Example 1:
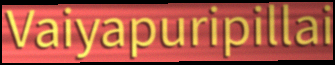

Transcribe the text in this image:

Vaiyapuripillai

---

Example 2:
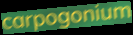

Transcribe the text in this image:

carpogonium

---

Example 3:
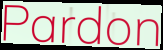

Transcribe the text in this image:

Pardon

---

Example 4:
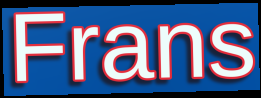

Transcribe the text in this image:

Frans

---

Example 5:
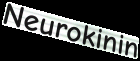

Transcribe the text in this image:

Neurokinin